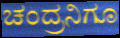
ಚಂದ್ರನಿಗೂ